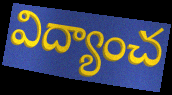
విద్యాంచ